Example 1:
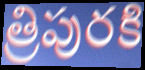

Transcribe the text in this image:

త్రిపురకి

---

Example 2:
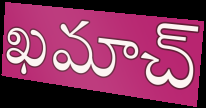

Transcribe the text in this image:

ఖమాచ్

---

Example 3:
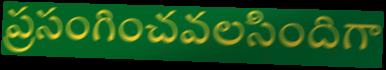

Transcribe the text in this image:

ప్రసంగించవలసిందిగా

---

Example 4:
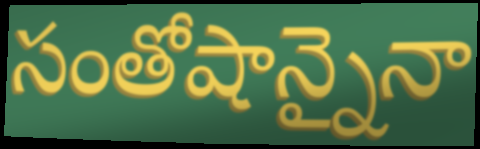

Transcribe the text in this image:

సంతోషాన్నైనా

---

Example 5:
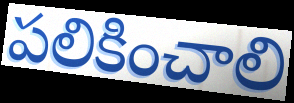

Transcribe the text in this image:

పలికించాలి